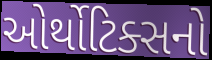
ઓર્થોટિક્સનો